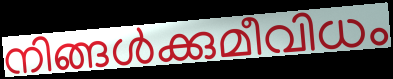
നിങ്ങൾക്കുമീവിധം